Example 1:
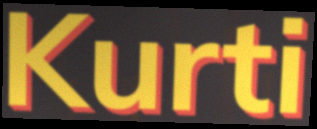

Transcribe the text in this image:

Kurti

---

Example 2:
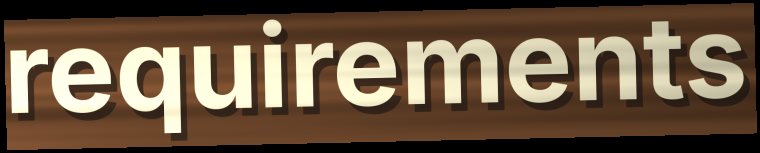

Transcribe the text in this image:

requirements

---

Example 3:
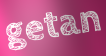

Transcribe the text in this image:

getan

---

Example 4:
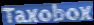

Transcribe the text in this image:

Taxobox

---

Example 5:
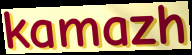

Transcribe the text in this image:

kamazh